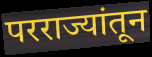
परराज्यांतून